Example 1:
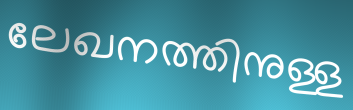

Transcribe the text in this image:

ലേഖനത്തിനുള്ള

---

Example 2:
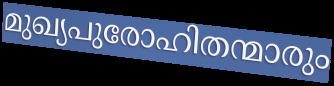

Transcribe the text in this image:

മുഖ്യപുരോഹിതന്മാരും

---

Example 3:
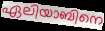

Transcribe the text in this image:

ഏലിയാബിനെ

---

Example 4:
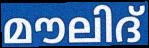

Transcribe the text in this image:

മൗലിദ്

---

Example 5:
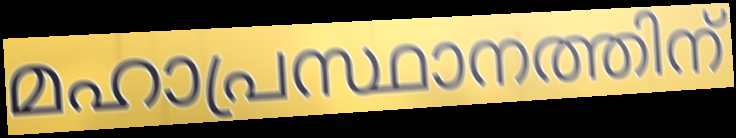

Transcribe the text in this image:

മഹാപ്രസ്ഥാനത്തിന്